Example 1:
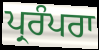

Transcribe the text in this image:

ਪ੍ਰਰੰਪਰਾ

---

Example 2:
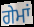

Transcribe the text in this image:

ਗੇਮਾਂ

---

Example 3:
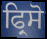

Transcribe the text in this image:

ਫ੍ਰਿਸੋ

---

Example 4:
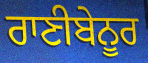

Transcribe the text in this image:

ਰਾਣੀਬੇਨੂਰ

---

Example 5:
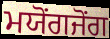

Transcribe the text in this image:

ਮਯੋਂਗਜੋਂਗ